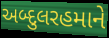
અબ્દુલરહમાને